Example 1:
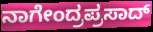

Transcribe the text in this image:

ನಾಗೇಂದ್ರಪ್ರಸಾದ್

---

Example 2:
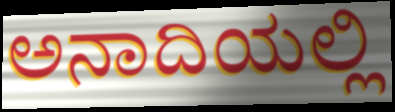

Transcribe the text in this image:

ಅನಾದಿಯಲ್ಲಿ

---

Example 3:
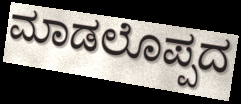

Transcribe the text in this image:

ಮಾಡಲೊಪ್ಪದ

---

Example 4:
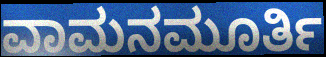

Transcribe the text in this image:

ವಾಮನಮೂರ್ತಿ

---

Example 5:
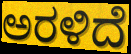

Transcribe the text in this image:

ಅರಳಿದೆ